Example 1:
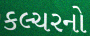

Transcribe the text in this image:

કલ્ચરનો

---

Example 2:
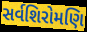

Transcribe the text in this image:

સર્વશિરોમણિ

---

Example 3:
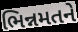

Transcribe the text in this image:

ભિન્નમતને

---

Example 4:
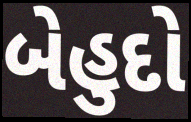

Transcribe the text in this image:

બેહુદો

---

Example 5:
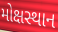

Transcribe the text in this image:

મોક્ષસ્થાન